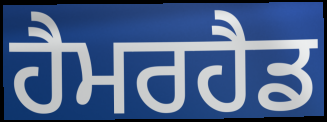
ਹੈਮਰਹੈਡ